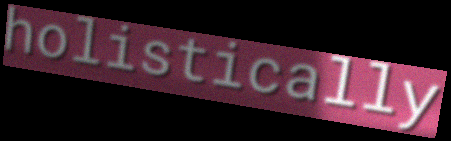
holistically